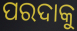
ପରଦାକୁ